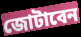
জোটাবেন